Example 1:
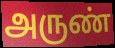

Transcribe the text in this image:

அருண்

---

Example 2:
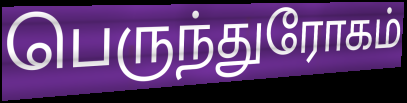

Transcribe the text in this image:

பெருந்துரோகம்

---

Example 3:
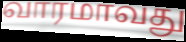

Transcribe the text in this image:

வாரமாவது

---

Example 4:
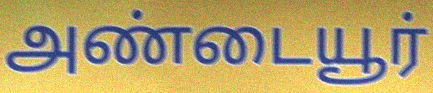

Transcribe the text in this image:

அண்டையூர்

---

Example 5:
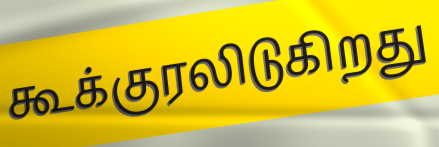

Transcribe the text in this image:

கூக்குரலிடுகிறது